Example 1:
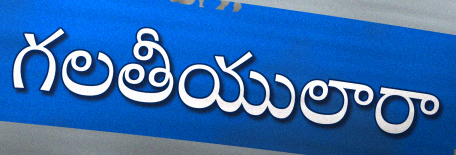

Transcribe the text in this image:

గలతీయులారా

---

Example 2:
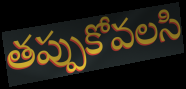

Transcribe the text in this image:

తప్పుకోవలసి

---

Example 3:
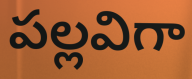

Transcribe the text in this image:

పల్లవిగా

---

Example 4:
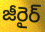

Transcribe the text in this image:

జీరైర్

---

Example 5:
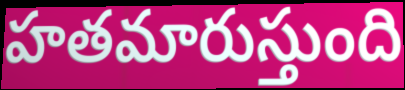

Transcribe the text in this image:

హతమారుస్తుంది